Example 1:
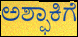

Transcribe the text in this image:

ಅಶ್ಫಾಕಿಗೆ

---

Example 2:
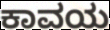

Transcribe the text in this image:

ಕಾವಯ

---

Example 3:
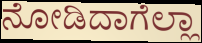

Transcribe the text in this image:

ನೋಡಿದಾಗೆಲ್ಲಾ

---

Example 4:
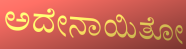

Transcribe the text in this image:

ಅದೇನಾಯಿತೋ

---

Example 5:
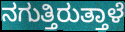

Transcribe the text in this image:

ನಗುತ್ತಿರುತ್ತಾಳೆ